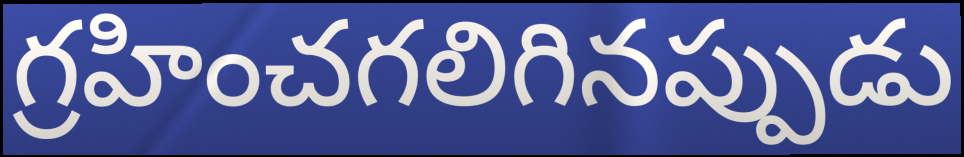
గ్రహించగలిగినప్పుడు